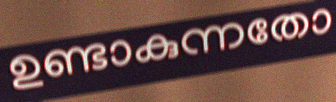
ഉണ്ടാകുന്നതോ